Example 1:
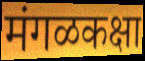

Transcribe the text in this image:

मंगळकक्षा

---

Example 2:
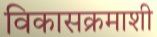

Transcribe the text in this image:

विकासक्रमाशी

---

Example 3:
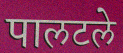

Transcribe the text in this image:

पालटले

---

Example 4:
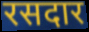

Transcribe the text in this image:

रसदार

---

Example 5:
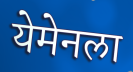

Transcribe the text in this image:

येमेनला